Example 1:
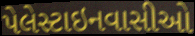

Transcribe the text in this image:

પેલેસ્ટાઇનવાસીઓ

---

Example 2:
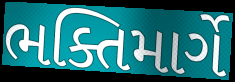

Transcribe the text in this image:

ભક્તિમાર્ગે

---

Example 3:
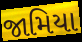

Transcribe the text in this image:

જામિયા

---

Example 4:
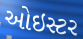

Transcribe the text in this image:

ઓઇસ્ટર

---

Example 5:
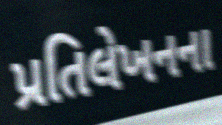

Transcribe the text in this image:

પ્રતિલેખનના